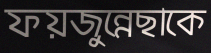
ফয়জুন্নেছাকে